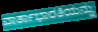
ವಾರ್ತಾಭಾರತಿಯನ್ನು